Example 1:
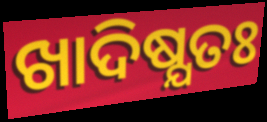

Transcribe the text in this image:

ଖାଦିଷ୍ଯତଃ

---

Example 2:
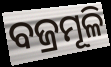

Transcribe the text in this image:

ବଜ୍ରମୂଳି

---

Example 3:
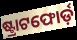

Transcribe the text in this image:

ଷ୍ଟ୍ରାଟଫୋର୍ଡ଼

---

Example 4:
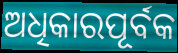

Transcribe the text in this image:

ଅଧିକାରପୂର୍ବକ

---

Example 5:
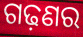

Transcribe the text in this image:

ଗଢ଼ଣର